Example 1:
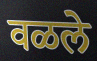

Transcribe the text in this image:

वळले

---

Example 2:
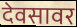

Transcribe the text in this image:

देवसावर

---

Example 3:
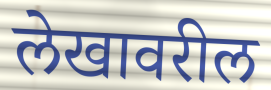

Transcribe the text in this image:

लेखावरील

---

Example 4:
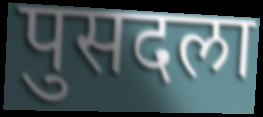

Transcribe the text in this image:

पुसदला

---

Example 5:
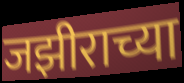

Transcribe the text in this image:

जझीराच्या